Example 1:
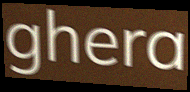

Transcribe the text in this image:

ghera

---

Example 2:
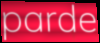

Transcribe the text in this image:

parde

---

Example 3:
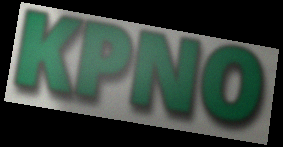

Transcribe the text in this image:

KPNO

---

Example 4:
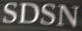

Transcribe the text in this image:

SDSN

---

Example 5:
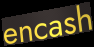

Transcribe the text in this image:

encash